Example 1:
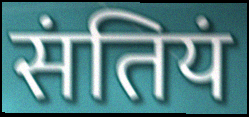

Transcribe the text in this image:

संतियं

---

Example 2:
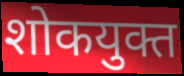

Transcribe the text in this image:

शोकयुक्त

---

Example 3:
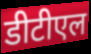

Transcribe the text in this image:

डीटीएल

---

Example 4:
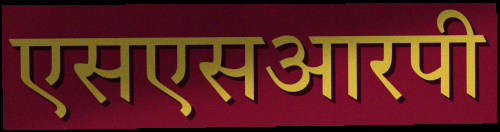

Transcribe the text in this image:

एसएसआरपी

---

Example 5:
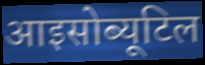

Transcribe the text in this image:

आइसोब्यूटिल